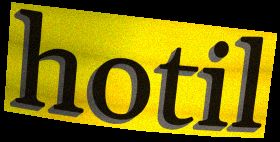
hotil